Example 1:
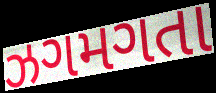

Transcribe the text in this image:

ઝગમગતા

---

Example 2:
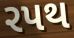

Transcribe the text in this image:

રપથ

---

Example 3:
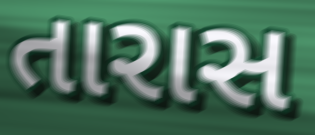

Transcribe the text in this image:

તારાસ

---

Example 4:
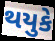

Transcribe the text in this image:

થયુકે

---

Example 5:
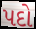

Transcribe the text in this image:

પદો